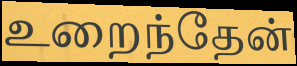
உறைந்தேன்